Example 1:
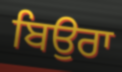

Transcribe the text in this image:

ਬਿਉਰਾ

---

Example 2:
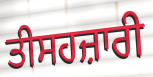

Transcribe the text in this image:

ਤੀਸਹਜ਼ਾਰੀ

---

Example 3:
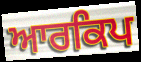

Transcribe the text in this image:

ਆਰਕਿਪ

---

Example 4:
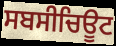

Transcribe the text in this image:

ਸਬਸੀਚਿਊਟ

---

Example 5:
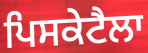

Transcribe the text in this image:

ਪਿਸਕੇਟੈਲਾ